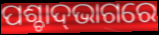
ପଶ୍ଚାଦ୍‌ଭାଗରେ